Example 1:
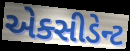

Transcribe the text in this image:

એક્સીડેન્ટ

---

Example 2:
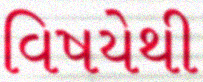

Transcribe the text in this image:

વિષયેથી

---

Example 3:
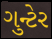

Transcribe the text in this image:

ગુન્ટેર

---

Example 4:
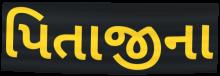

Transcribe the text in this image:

પિતાજીના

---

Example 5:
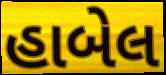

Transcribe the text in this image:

હાબેલ